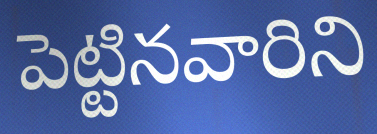
పెట్టినవారిని